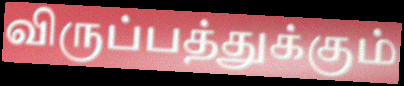
விருப்பத்துக்கும்